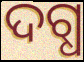
ଦଗ୍ଧ